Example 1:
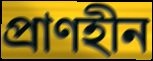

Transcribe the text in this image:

প্রাণহীন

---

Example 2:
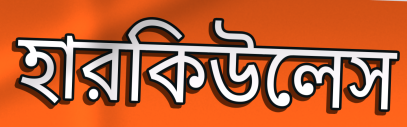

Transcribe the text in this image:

হারকিউলেস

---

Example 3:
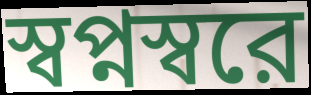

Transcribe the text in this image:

স্বপ্নস্বরে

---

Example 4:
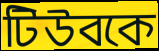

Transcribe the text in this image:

টিউবকে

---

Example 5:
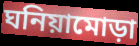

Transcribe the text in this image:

ঘনিয়ামোড়া